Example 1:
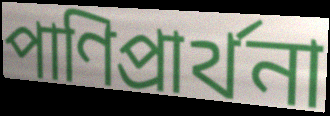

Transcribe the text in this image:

পাণিপ্রার্থনা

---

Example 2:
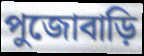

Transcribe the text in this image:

পুজোবাড়ি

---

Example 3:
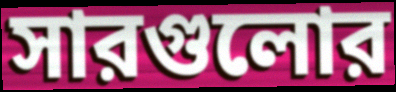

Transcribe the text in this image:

সারগুলোর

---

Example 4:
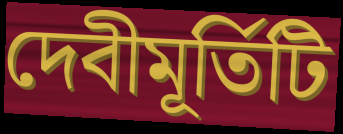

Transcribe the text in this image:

দেবীমূর্তিটি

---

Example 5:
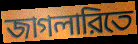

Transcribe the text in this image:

জাগলারিতে